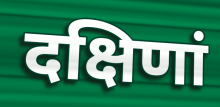
दक्षिणां